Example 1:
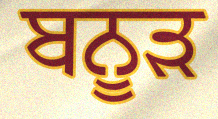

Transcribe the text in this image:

ਬਨੂੜ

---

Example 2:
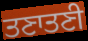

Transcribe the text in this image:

ਤਣਾਤਣੀ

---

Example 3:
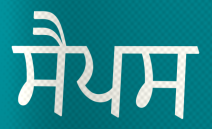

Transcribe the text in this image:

ਸੈਪਸ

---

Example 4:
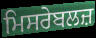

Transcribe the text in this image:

ਮਿਸਰੇਬਲਜ਼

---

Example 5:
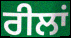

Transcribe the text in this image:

ਰੀਲਾਂ